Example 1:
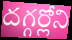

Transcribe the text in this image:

దగ్గర్లోని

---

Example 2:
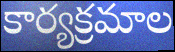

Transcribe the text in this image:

కార్యక్రమాల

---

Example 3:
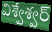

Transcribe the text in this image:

విశ్వేశ్వర్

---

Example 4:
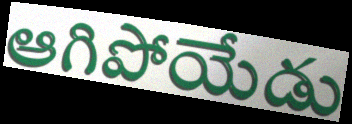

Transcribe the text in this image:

ఆగిపోయేడు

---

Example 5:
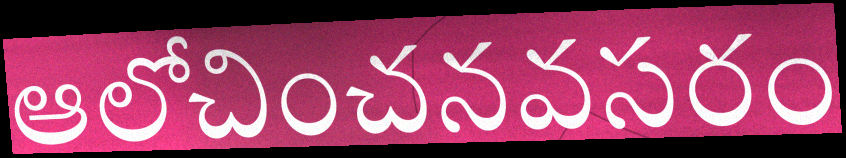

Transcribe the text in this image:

ఆలోచించనవసరం